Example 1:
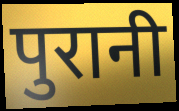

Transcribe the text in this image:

पुरानी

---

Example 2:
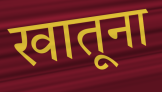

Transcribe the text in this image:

खातूना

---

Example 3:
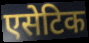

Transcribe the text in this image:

एसेटिक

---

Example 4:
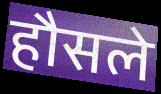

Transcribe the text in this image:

हौसले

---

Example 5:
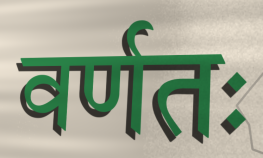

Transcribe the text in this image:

वर्णतः